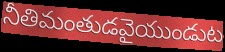
నీతిమంతుడవైయుండుట